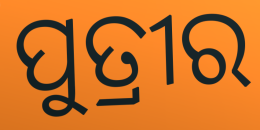
ପୁତ୍ରୀର